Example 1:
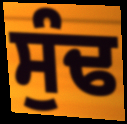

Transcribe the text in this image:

ਸੁੰਢ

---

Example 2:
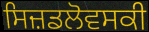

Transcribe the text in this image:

ਸਿਜ਼ਡਲੋਵਸਕੀ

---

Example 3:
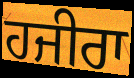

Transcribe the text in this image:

ਹਜੀਰਾ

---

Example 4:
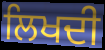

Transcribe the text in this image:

ਲਿਖਦੀ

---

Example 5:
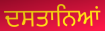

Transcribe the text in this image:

ਦਸਤਾਨਿਆਂ